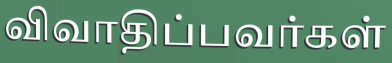
விவாதிப்பவர்கள்